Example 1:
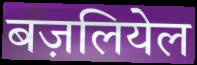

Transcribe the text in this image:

बज़लियेल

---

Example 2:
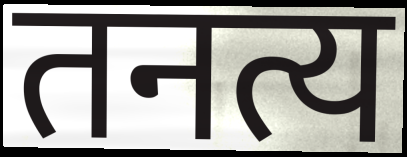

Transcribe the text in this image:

तनत्य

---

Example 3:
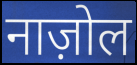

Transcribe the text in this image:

नाज़ोल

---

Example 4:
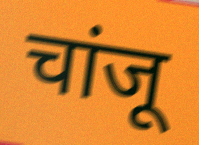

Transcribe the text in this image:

चांजू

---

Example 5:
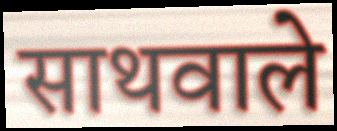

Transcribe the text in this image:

साथवाले